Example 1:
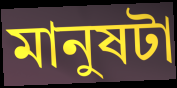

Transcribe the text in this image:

মানুষটা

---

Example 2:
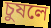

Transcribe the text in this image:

চুষলে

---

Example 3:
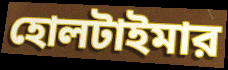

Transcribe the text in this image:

হোলটাইমার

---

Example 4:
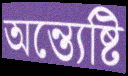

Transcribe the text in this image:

অন্ত্যেষ্টি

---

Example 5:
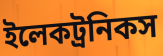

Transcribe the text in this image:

ইলেকট্রনিকস